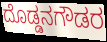
ದೊಡ್ಡನಗೌಡರ